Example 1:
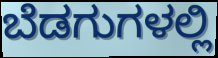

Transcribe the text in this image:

ಬೆಡಗುಗಳಲ್ಲಿ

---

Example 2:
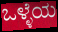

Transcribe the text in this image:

ಒಳ್ಳೆಯ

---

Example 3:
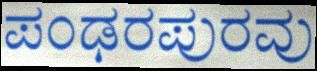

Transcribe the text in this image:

ಪಂಢರಪುರವು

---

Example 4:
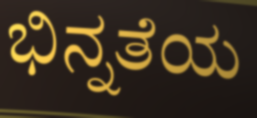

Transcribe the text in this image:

ಭಿನ್ನತೆಯ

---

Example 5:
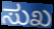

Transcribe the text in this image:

ಸುಖ